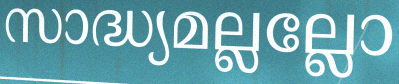
സാദ്ധ്യമല്ലല്ലോ